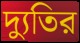
দ্যুতির